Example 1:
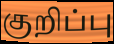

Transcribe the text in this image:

குறிப்பு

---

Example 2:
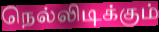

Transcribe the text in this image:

நெல்லிடிக்கும்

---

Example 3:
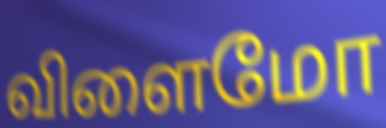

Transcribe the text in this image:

விளைமோ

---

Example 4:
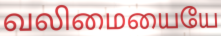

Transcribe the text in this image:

வலிமையையே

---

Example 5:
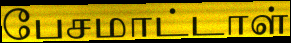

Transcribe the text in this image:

பேசமாட்டாள்